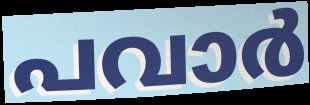
പവാർ